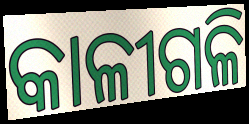
କାଳୀଗଳି